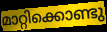
മാറ്റിക്കൊണ്ടു